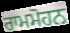
ਰਾਮਮੋਹਨ